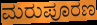
ಮರುಪೂರಣ